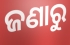
ଜଣାରୁ